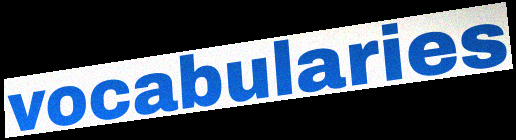
vocabularies